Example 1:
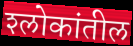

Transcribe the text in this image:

श्लोकांतील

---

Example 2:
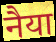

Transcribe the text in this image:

नैया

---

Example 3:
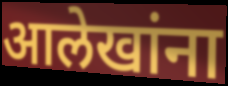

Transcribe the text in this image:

आलेखांना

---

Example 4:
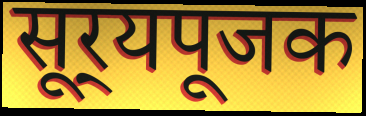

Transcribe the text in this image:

सूर्यपूजक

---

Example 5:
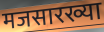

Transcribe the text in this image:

मजसारख्या